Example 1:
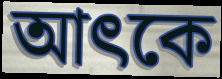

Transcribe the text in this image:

আৎকে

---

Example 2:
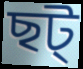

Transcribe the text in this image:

ছট্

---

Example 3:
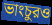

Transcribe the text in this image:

ভাংচুরও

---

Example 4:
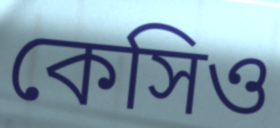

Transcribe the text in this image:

কেসিও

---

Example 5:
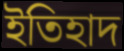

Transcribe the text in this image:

ইতিহাদ